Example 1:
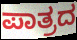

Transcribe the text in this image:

ಪಾತ್ರದ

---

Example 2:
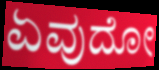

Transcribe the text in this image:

ಏವುದೋ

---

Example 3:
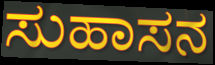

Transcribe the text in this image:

ಸುಹಾಸನ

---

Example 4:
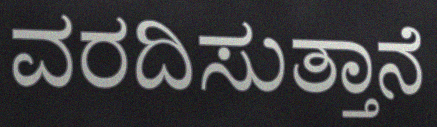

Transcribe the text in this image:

ವರದಿಸುತ್ತಾನೆ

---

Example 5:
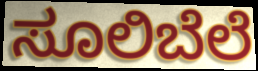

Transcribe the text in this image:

ಸೂಲಿಬೆಲೆ